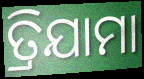
ତ୍ରିଯାମା